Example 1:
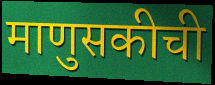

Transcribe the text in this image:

माणुसकीची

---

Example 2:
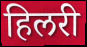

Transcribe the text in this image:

हिलरी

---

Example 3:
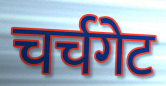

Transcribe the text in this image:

चर्चगेट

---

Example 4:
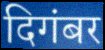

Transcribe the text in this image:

दिगंबर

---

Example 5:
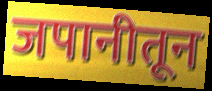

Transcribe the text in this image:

जपानीतून